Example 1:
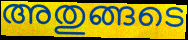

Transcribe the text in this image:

അതുങ്ങടെ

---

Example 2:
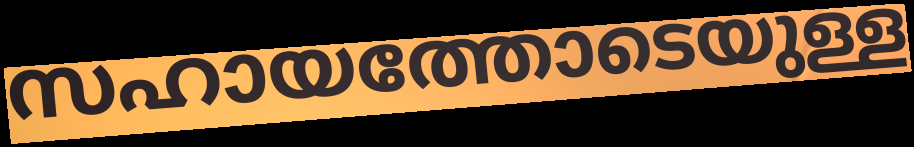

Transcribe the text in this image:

സഹായത്തോടെയുള്ള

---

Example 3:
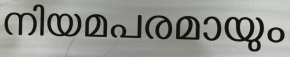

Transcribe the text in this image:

നിയമപരമായും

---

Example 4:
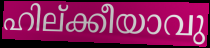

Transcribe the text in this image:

ഹില്ക്കീയാവു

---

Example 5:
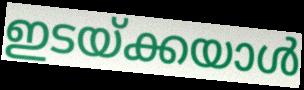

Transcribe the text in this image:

ഇടയ്ക്കയാൾ